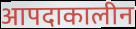
आपदाकालीन